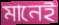
মানেই